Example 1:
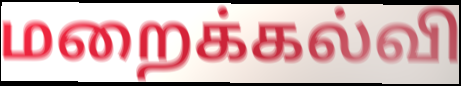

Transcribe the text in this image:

மறைக்கல்வி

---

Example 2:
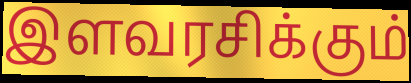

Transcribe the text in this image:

இளவரசிக்கும்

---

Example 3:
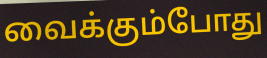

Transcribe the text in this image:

வைக்கும்போது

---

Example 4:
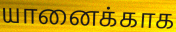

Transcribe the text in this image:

யானைக்காக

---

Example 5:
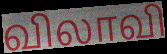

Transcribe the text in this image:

விலாவி